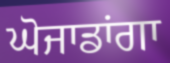
ਘੋਜਾਡਾਂਗਾ